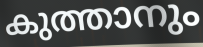
കുത്താനും